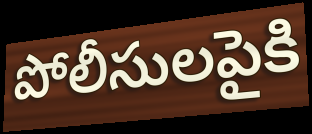
పోలీసులపైకి